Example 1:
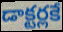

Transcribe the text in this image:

డాక్టర్లకే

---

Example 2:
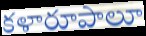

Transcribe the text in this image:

కళారూపాలూ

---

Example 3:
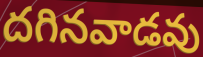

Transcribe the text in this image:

దగినవాడవు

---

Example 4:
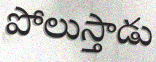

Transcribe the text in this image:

పోలుస్తాడు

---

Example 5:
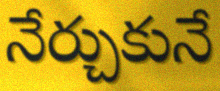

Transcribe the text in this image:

నేర్చుకునే